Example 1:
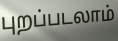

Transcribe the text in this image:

புறப்படலாம்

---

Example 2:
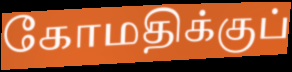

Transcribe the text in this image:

கோமதிக்குப்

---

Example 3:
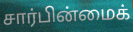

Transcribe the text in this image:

சார்பின்மைக்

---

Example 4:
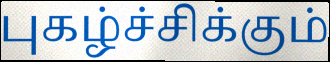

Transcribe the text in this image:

புகழ்ச்சிக்கும்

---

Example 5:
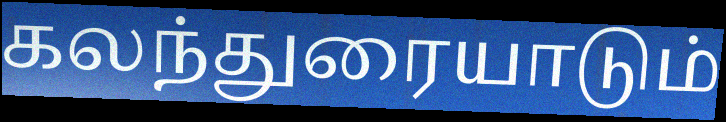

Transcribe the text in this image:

கலந்துரையாடும்